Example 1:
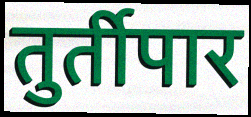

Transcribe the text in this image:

तुर्तीपार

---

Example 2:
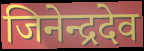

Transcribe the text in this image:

जिनेन्द्रदेव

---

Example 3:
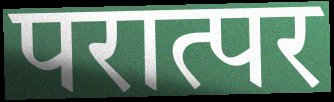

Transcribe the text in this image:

परात्पर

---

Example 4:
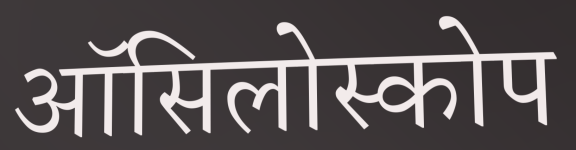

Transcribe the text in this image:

ऑसिलोस्कोप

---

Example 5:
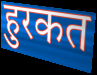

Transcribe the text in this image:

हुरकत